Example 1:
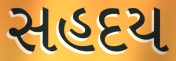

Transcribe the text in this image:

સહદય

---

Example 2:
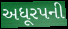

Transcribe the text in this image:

અધૂરપની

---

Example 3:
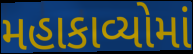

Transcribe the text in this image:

મહાકાવ્યોમાં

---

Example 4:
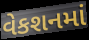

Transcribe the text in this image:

વેકશનમાં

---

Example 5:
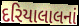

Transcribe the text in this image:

દરિયાલાલનાં